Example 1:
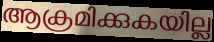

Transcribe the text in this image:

ആക്രമിക്കുകയില്ല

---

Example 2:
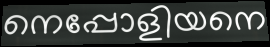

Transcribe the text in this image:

നെപ്പോളിയനെ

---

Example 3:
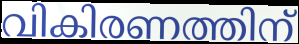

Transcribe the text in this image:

വികിരണത്തിന്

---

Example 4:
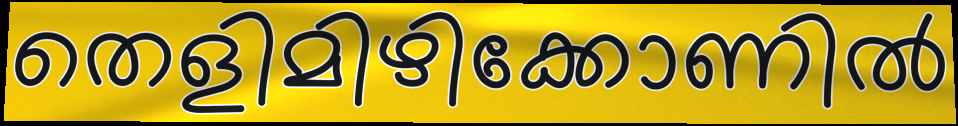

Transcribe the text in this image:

തെളിമിഴിക്കോണിൽ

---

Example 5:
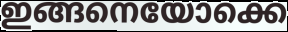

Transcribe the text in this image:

ഇങ്ങനെയോക്കെ